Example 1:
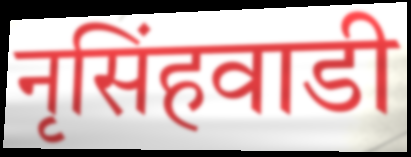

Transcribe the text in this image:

नृसिंहवाडी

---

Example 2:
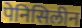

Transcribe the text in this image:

पेनिसिलीन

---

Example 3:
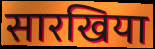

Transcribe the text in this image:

सारखिया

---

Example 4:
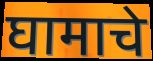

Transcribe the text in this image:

घामाचे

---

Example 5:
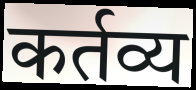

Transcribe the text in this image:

कर्तव्य